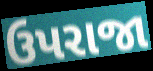
ઉપરાજા